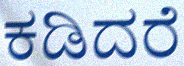
ಕಡಿದರೆ